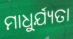
ମାଧୁର୍ଯ୍ୟତା